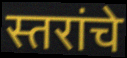
स्तरांचे